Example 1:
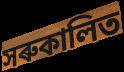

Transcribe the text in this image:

সৰুকালিত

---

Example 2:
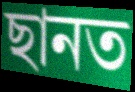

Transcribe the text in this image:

ছানত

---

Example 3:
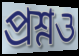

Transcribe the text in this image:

প্ৰশ্নও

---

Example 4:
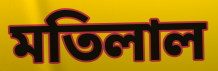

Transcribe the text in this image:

মতিলাল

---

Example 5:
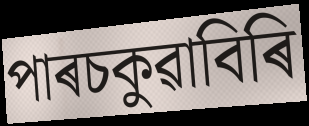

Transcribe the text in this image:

পাৰচকুৱাবিৰি